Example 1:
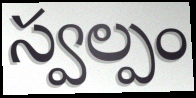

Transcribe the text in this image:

స్వల్పం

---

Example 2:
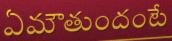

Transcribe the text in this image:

ఏమౌతుందంటే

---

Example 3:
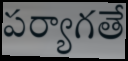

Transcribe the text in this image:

పర్యాగతే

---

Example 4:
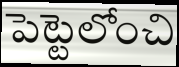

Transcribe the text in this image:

పెట్టెలోంచి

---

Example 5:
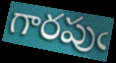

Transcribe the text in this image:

గారపుఁ